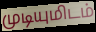
முடியுமிடம்